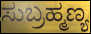
ಸುಬ್ರಹ್ಮಣ್ಯ